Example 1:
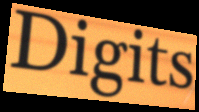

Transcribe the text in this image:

Digits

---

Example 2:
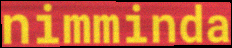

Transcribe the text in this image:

nimminda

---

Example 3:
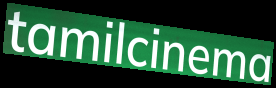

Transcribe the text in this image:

tamilcinema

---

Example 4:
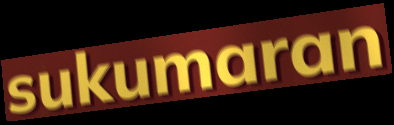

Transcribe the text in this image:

sukumaran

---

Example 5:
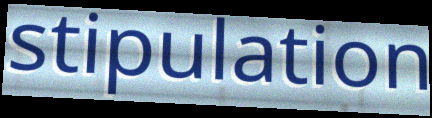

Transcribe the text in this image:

stipulation